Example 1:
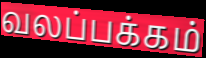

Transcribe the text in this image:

வலப்பக்கம்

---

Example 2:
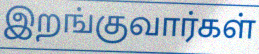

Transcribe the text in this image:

இறங்குவார்கள்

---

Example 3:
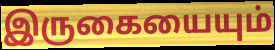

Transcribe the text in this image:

இருகையையும்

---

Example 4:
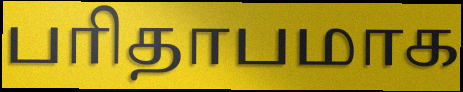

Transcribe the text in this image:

பரிதாபமாக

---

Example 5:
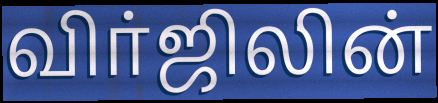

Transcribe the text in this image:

விர்ஜிலின்